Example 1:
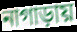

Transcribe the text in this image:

নাগাড়ায়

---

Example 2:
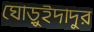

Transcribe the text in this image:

ঘোড়ুইদাদুর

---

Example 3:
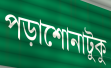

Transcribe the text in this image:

পড়াশোনাটুকু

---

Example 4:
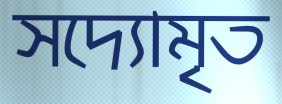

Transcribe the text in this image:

সদ্যোমৃত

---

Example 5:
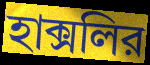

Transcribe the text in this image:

হাক্সলির